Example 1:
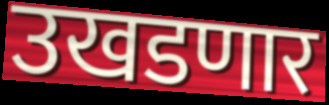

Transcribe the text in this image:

उखडणार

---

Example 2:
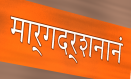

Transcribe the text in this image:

मार्गदर्शनानं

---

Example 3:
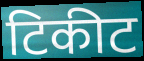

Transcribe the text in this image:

टिकीट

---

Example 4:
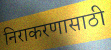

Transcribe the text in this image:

निराकरणासाठी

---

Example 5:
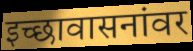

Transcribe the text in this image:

इच्छावासनांवर